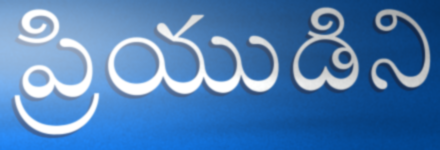
ప్రియుడిని